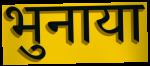
भुनाया